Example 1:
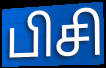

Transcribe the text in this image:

பிசி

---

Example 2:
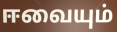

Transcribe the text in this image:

ஈவையும்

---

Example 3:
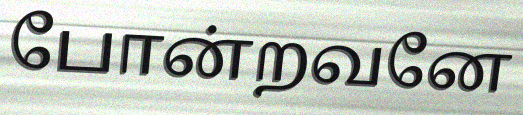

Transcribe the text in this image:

போன்றவனே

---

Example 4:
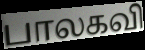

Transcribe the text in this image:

பாலகவி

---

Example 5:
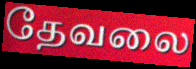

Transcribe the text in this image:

தேவலை